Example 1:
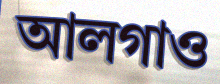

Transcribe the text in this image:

আলগাও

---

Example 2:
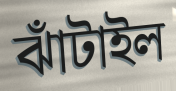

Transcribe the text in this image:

ঝাঁটাইল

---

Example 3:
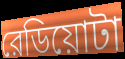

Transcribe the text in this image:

রেডিয়োটা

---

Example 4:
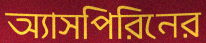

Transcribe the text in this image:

অ্যাসপিরিনের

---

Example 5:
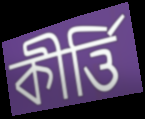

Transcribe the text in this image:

কীর্ত্তি